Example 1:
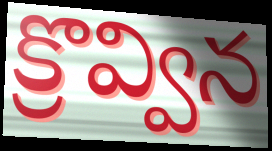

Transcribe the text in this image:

క్రొవ్విన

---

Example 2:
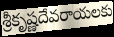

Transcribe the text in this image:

శ్రీకృష్ణదేవరాయలకు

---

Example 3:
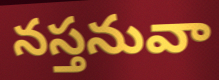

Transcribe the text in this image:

నస్తనువా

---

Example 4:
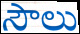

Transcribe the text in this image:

సౌలు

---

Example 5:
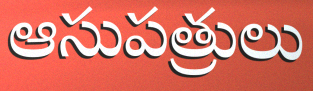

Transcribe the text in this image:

ఆసుపత్రులు